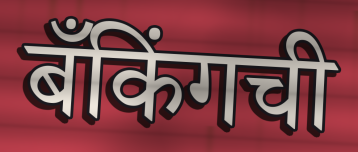
बँकिंगची